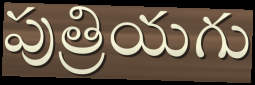
పుత్రియగు